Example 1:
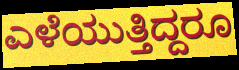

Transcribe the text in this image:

ಎಳೆಯುತ್ತಿದ್ದರೂ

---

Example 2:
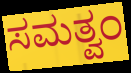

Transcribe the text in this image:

ಸಮತ್ವಂ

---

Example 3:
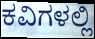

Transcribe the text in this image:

ಕವಿಗಳಲ್ಲಿ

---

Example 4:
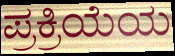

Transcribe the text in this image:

ಪ್ರಕ್ರಿಯೆಯ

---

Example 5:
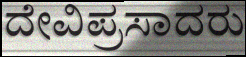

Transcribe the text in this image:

ದೇವಿಪ್ರಸಾದರು